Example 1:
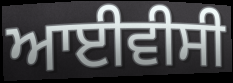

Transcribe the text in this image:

ਆਈਵੀਸੀ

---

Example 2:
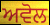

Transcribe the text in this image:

ਅਵੋਲ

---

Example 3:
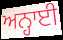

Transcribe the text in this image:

ਅਨ੍ਹਾਈ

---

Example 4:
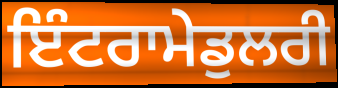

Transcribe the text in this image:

ਇੰਟਰਾਮੇਡੁਲਰੀ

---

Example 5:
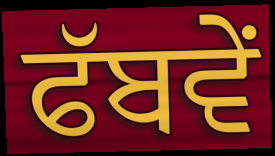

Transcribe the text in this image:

ਫੱਬਵੇਂ